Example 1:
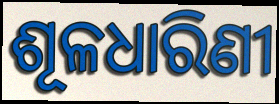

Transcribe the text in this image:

ଶୂଳଧାରିଣୀ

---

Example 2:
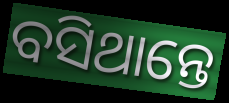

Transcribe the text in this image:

ବସିଥାନ୍ତେ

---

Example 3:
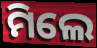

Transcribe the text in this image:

ମିଲେ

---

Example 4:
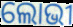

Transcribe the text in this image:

ଲୋଭୀ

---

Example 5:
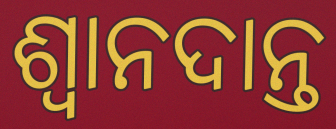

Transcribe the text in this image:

ଶ୍ଵାନଦାନ୍ତ